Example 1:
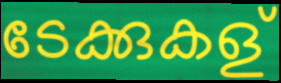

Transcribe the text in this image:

ടേക്കുകള്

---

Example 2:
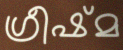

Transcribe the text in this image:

ഗ്രീഷ്മ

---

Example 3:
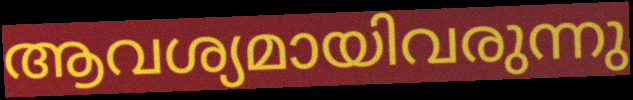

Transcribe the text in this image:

ആവശ്യമായിവരുന്നു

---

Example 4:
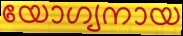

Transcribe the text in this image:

യോഗ്യനായ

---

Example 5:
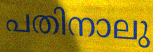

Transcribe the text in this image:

പതിനാലു